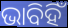
ଭାବିହିଁ